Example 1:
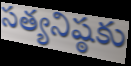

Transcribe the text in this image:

సత్యనిష్ఠకు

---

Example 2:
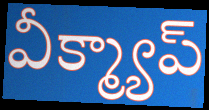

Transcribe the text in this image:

వీక్మ్యాప్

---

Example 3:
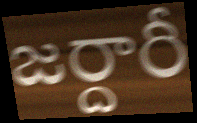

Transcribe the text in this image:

జర్దారీ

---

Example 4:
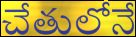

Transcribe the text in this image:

చేతులోనే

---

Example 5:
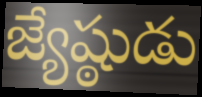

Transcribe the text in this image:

జ్యేష్ఠుడు